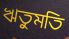
ঋতুমতি